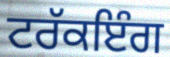
ਟਰੱਕਇੰਗ